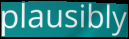
plausibly